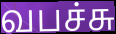
வபச்சு